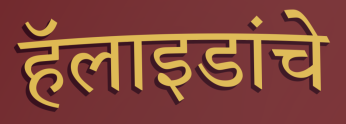
हॅलाइडांचे